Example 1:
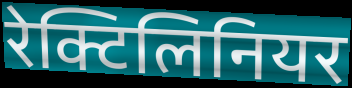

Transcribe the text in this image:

रेक्टिलिनियर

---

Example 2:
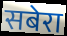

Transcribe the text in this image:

सबेरा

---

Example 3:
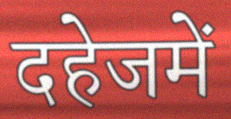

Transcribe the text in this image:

दहेजमें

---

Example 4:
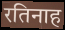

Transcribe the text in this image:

रतिनाह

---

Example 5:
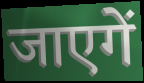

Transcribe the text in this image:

जाएगें